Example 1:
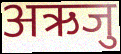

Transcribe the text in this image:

अऋजु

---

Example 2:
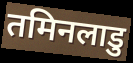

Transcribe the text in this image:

तमिनलाडु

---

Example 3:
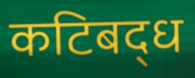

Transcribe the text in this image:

कटिबद्ध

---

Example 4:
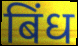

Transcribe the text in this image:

बिंध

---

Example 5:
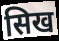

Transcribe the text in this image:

सिख